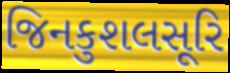
જિનકુશલસૂરિ